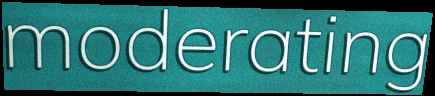
moderating